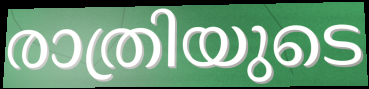
രാത്രിയുടെ